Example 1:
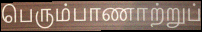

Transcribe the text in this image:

பெரும்பாணாற்றுப்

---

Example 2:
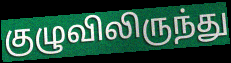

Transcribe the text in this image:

குழுவிலிருந்து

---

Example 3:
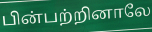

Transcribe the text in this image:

பின்பற்றினாலே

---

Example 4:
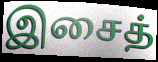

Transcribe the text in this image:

இசைத்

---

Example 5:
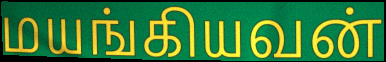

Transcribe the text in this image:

மயங்கியவன்